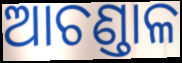
ଆଚଣ୍ଡାଳ